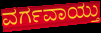
ವರ್ಗವಾಯ್ತು